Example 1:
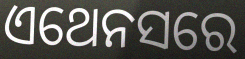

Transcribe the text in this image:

ଏଥେନସରେ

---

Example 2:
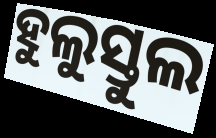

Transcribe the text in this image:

ହୁଲୁସ୍ତୁଲ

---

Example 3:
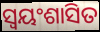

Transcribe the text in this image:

ସ୍ବୟଂଶାସିତ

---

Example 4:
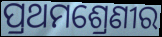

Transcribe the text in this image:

ପ୍ରଥମଶ୍ରେଣୀର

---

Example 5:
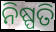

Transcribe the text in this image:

ନିଷ୍ପତି